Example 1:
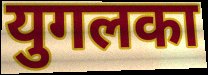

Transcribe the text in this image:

युगलका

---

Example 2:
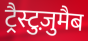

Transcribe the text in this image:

ट्रैस्टुज़ुमैब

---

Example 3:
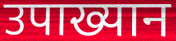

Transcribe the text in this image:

उपाख्यान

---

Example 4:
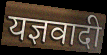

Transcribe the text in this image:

यज्ञवादी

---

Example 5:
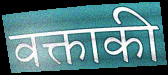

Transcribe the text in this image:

वक्ताकी